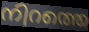
നിറത്തെ